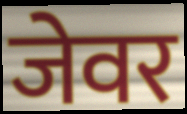
जेवर